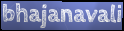
bhajanavali